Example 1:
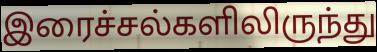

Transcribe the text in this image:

இரைச்சல்களிலிருந்து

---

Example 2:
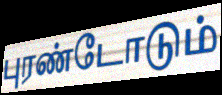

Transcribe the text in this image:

புரண்டோடும்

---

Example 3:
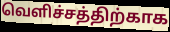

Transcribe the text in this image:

வெளிச்சத்திற்காக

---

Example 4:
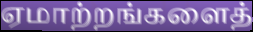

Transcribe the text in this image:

ஏமாற்றங்களைத்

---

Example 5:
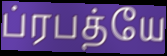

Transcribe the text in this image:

ப்ரபத்யே